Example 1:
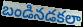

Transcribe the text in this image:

బండినడకలా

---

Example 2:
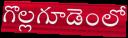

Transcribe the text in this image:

గొల్లగూడెంలో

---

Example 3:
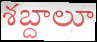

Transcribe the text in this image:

శబ్దాలూ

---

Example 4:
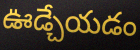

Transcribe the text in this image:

ఊడ్చేయడం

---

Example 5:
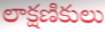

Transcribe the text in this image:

లాక్షణికులు